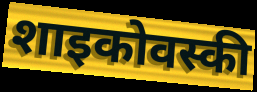
शाइकोवस्की